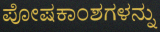
ಪೋಷಕಾಂಶಗಳನ್ನು